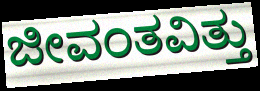
ಜೀವಂತವಿತ್ತು